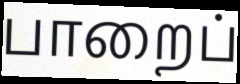
பாறைப்